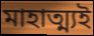
মাহাত্ম্যই